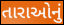
તારાઓનું